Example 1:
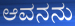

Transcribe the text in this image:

ಆವನನು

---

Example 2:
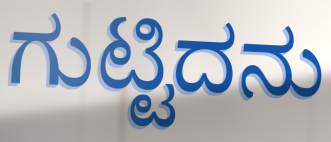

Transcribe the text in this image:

ಗುಟ್ಟಿದನು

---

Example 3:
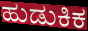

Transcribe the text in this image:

ಹುಡುಕಿಕ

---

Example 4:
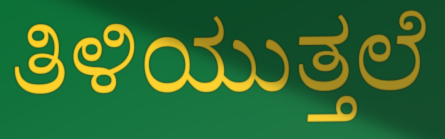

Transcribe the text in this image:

ತಿಳಿಯುತ್ತಲೆ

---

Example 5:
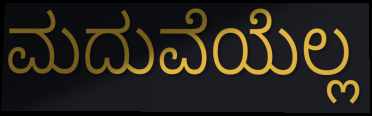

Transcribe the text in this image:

ಮದುವೆಯೆಲ್ಲ